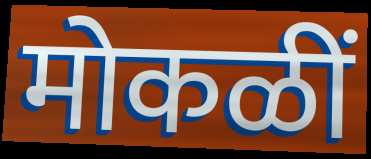
मोकळीं